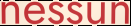
nessun